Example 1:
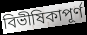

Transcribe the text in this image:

বিভীষিকাপূর্ণ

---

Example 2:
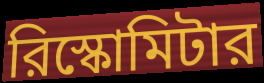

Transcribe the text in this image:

রিস্কোমিটার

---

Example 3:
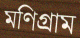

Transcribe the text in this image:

মণিগ্রাম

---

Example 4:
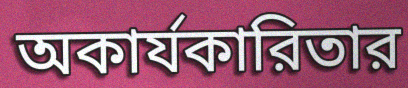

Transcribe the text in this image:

অকার্যকারিতার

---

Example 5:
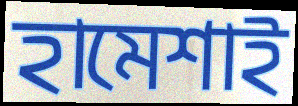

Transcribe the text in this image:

হামেশাই